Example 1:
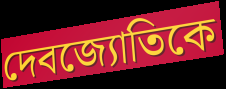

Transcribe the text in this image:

দেবজ্যোতিকে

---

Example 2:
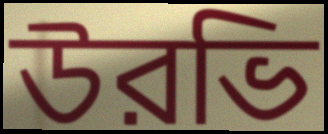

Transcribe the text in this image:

উরভি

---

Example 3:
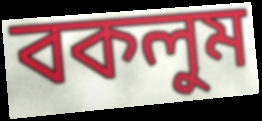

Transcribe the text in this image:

বকলুম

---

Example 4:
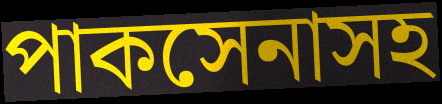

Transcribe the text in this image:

পাকসেনাসহ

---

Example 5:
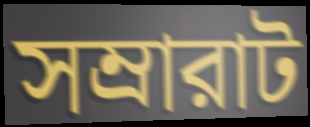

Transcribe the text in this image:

সম্রারাট